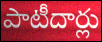
పాటీదార్లు